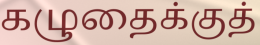
கழுதைக்குத்